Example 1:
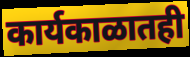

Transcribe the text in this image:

कार्यकाळातही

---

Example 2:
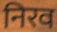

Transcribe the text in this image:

निरव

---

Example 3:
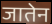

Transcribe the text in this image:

जातेन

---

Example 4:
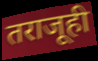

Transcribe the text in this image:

तराजूही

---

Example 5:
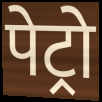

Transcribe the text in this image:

पेट्रो